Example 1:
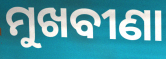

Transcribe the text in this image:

ମୁଖବୀଣା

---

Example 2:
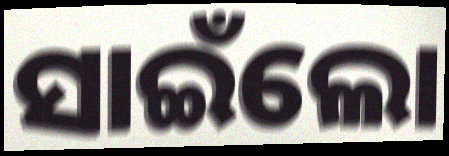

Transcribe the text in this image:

ସାଇଁଲୋ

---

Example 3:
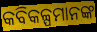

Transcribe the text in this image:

କବିକଳ୍ପମାନଙ୍କ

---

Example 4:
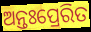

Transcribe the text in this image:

ଅନ୍ତଃପ୍ରେରିତ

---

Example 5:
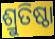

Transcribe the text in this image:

ଶ୍ରୁତିଷ୍ଠା